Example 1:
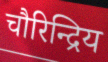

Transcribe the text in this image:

चौरिन्द्रिय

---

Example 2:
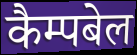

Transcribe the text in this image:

कैम्पबेल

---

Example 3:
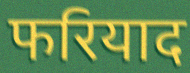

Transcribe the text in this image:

फरियाद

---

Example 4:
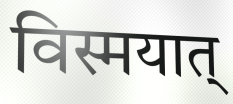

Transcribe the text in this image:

विस्मयात्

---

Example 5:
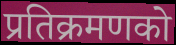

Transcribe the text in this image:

प्रतिक्रमणको